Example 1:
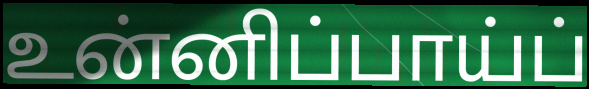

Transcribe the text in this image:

உன்னிப்பாய்ப்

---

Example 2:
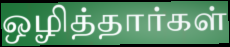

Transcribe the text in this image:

ஒழித்தார்கள்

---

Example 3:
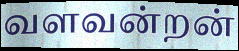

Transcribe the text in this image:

வளவன்றன்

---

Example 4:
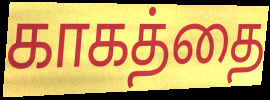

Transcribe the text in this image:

காகத்தை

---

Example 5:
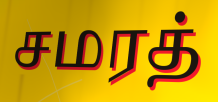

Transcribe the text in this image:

சமரத்